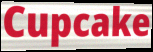
Cupcake